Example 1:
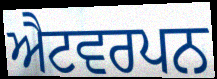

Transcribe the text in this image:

ਐਟਵਰਪਨ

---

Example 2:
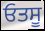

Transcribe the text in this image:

ਓਤਸੂ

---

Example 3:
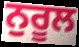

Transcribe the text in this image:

ਨੁਰੂਲ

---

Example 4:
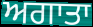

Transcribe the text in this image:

ਅਗਾਤਾ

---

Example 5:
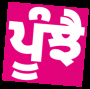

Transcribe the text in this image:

ਪੂੰਝੈ